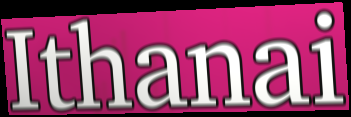
Ithanai